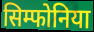
सिम्फोनिया